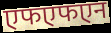
एफएफएन